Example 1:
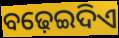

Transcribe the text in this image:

ବଢ଼େଇଦିଏ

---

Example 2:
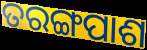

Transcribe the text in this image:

ତରଙ୍ଗପାଶ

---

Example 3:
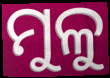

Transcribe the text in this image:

ମୁଳୁ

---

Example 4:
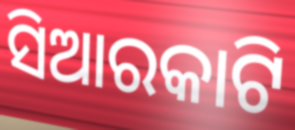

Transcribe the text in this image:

ସିଆରକାଟି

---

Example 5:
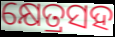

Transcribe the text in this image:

କ୍ଷେତ୍ରସହ